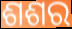
ଶଶର